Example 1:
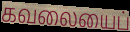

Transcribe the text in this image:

கவலையைப்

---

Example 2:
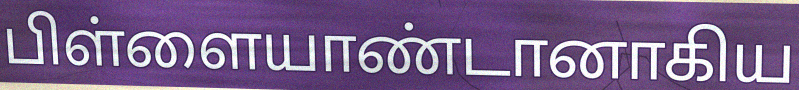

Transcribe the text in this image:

பிள்ளையாண்டானாகிய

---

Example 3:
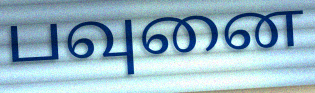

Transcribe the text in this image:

பவுனை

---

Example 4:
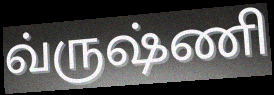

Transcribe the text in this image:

வ்ருஷ்ணி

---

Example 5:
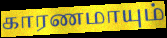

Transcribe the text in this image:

காரணமாயும்